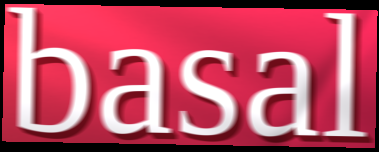
basal